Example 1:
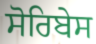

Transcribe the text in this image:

ਸੋਰਿਬੇਸ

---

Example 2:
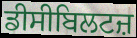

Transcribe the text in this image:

ਡੀਸੀਬਿਲਟਜ਼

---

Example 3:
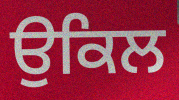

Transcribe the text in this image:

ਉਕਿਲ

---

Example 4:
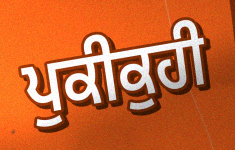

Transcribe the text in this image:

ਪੁਕੀਕੁਹੀ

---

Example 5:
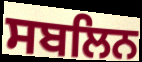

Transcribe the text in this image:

ਸਬਲਿਨ